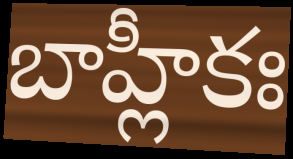
బాహ్లీకః